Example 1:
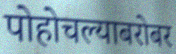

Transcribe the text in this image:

पोहोचल्याबरोबर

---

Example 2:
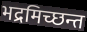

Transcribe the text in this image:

भद्रमिच्छन्त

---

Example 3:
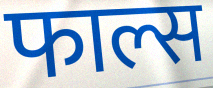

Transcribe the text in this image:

फाल्स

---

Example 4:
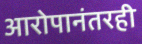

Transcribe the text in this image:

आरोपानंतरही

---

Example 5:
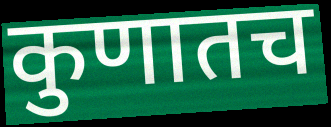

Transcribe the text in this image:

कुणातच